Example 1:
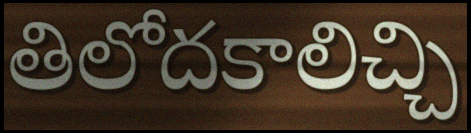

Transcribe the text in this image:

తిలోదకాలిచ్చి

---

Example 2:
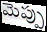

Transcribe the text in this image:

మెప్పు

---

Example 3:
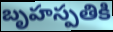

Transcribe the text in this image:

బృహస్పతికి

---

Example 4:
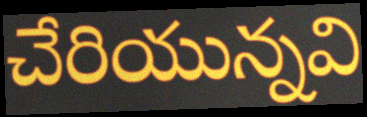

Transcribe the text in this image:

చేరియున్నవి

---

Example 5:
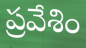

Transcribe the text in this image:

ప్రవేశిం